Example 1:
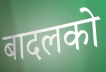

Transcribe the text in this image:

बादलको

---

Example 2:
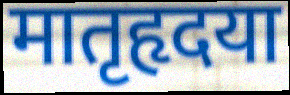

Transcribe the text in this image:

मातृहृदया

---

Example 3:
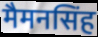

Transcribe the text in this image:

मैमनसिंह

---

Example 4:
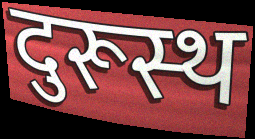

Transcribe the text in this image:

दुरूस्थ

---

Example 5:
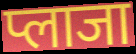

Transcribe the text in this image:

प्‍लाजा